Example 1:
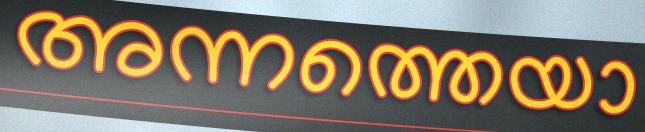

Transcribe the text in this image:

അന്നത്തെയാ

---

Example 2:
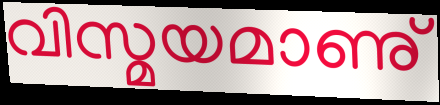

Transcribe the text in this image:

വിസ്മയമാണു്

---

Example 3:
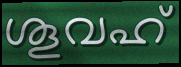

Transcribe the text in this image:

ശൂവഹ്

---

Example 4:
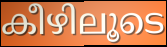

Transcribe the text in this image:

കീഴിലൂടെ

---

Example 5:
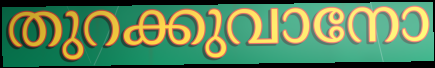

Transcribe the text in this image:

തുറക്കുവാനോ